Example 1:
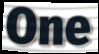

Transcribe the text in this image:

One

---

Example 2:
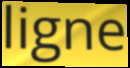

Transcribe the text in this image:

ligne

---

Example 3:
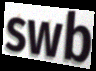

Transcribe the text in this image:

swb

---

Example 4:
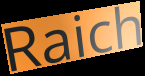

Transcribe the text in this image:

Raich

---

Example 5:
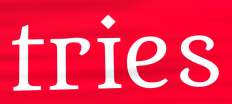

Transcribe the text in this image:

tries